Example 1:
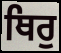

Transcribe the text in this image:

ਥਿਰੁ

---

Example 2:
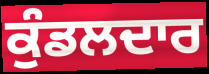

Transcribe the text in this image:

ਕੁੰਡਲਦਾਰ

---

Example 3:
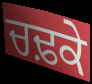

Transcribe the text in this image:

ਚਢ਼ਕੇ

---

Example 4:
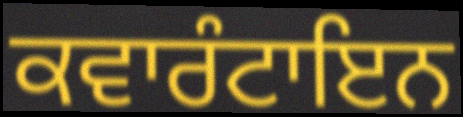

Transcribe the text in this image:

ਕਵਾਰੰਟਾਇਨ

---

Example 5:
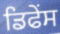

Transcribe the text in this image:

ਡਿਫੇਂਸ